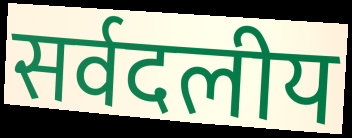
सर्वदलीय